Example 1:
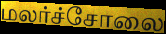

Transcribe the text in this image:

மலர்ச்சோலை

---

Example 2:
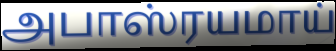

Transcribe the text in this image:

அபாஸ்ரயமாய்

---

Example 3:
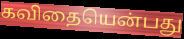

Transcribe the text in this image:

கவிதையென்பது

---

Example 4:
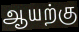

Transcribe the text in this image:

ஆயற்கு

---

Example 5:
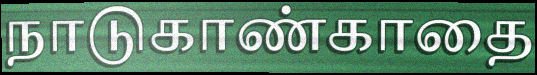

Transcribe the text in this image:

நாடுகாண்காதை